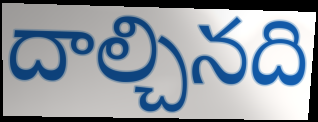
దాల్చినది